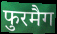
फुरमैग